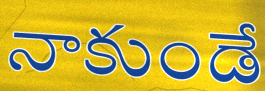
నాకుండే